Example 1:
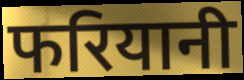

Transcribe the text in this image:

फरियानी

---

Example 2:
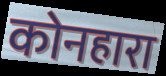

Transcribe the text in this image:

कोनहारा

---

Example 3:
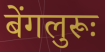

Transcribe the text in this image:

बेंगलुरूः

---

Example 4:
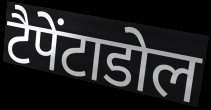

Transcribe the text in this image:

टैपेंटाडोल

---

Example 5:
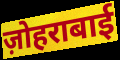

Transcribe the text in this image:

ज़ोहराबाई